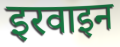
इरवाइन